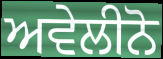
ਅਵੇਲੀਨੋ